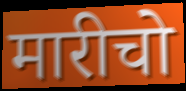
मारीचो